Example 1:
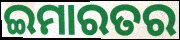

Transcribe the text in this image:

ଇମାରତର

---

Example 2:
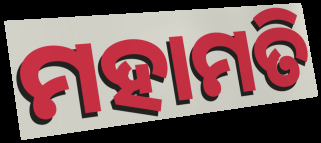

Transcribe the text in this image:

ମହାମତି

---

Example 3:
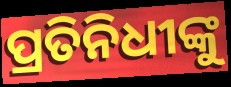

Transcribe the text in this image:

ପ୍ରତିନିଧୀଙ୍କୁ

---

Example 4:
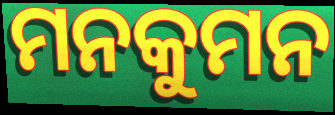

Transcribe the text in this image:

ମନକୁମନ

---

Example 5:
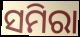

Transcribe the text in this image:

ସମିରା